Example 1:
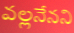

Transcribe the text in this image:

వల్లనేనని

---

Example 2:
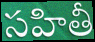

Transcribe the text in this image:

సహితీ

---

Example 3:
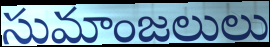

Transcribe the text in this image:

సుమాంజలులు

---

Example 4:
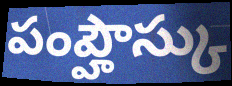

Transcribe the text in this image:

పంప్హౌస్కు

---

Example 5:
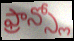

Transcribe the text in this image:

ఫ్రాన్స్లో